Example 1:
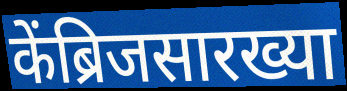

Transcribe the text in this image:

केंब्रिजसारख्या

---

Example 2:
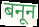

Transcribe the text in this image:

बनून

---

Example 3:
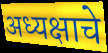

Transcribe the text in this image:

अध्यक्षाचे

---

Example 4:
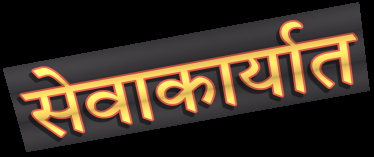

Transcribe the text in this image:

सेवाकार्यात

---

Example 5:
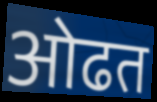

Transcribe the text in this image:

ओढत